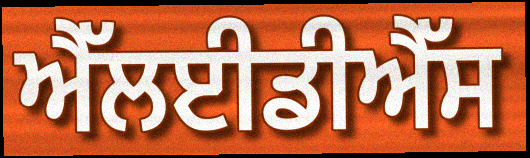
ਐੱਲਈਡੀਐੱਸ